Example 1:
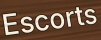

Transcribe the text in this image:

Escorts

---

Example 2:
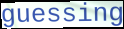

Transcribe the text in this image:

guessing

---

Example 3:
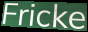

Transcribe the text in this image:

Fricke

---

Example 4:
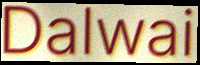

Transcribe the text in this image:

Dalwai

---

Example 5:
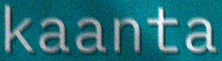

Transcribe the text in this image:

kaanta